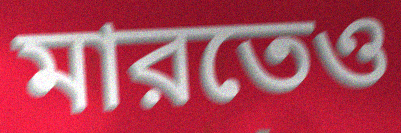
মারতেও